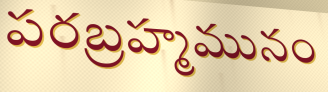
పరబ్రహ్మమునం